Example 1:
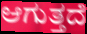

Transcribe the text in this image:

ಆಗುತ್ತದೆ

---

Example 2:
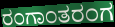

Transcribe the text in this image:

ರಂಗಾಂತರಂಗ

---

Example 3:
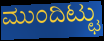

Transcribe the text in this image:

ಮುಂದಿಟ್ಟು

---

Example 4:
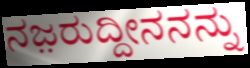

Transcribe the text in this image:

ನಜ಼ರುದ್ದೀನನನ್ನು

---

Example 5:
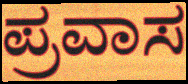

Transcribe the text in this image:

ಪ್ರವಾಸ